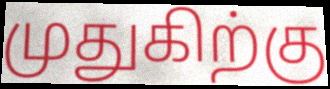
முதுகிற்கு